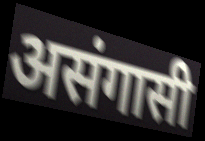
असंगासी